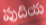
పుదియ